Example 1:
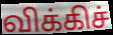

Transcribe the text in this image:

விக்கிச்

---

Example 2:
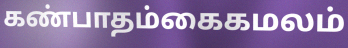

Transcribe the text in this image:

கண்பாதம்கைகமலம்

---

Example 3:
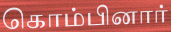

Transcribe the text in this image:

கொம்பினார்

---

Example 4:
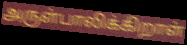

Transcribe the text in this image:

அருள்பாலிக்கிறாள்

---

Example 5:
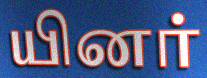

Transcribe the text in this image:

யினர்